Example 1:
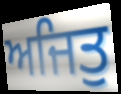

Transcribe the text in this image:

ਅਜਿਤੁ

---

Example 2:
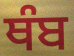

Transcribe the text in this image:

ਥੰਬ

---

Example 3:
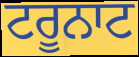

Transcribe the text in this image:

ਟਰੂਨਾਟ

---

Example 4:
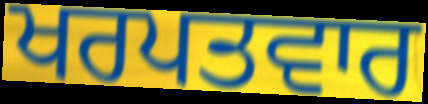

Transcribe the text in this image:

ਖਰਪਤਵਾਰ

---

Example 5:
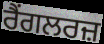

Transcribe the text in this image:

ਰੈਂਗਲਰਜ਼